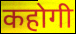
कहोगी